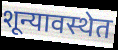
शून्यावस्थेत